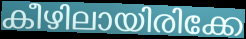
കീഴിലായിരിക്കേ